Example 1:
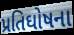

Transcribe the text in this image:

પ્રતિઘોષના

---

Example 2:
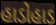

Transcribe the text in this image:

હાડોહાડ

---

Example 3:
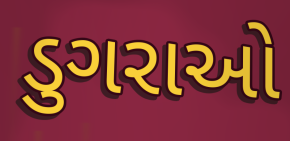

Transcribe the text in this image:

ડુગરાઓ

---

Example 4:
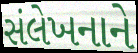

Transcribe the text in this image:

સંલેખનાને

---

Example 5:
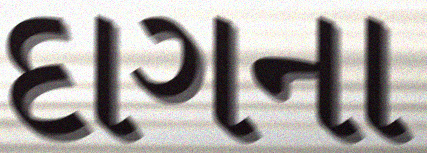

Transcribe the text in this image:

દાગના